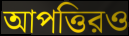
আপত্তিরও